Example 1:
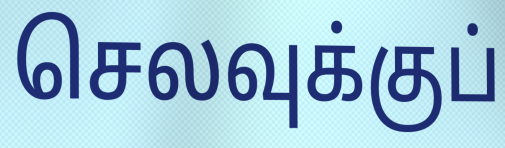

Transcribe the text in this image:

செலவுக்குப்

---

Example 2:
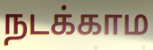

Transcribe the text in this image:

நடக்காம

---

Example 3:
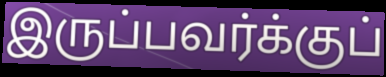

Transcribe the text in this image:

இருப்பவர்க்குப்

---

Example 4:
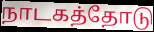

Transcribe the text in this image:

நாடகத்தோடு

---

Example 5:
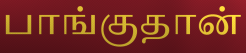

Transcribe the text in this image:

பாங்குதான்